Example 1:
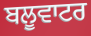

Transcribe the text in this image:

ਬਲੂਵਾਟਰ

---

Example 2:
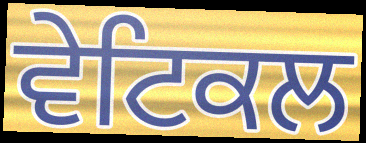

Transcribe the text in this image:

ਵੇਟਿਕਲ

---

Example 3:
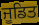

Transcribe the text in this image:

ਜੂਡਿਤ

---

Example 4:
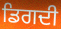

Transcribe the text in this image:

ਡਿਗਦੀ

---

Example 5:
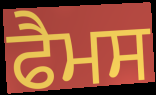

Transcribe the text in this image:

ਫੈਮਸ